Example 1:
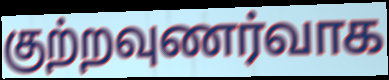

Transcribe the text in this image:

குற்றவுணர்வாக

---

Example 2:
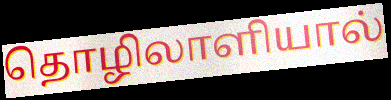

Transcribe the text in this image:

தொழிலாளியால்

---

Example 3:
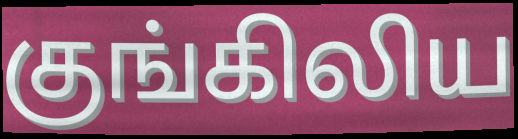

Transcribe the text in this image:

குங்கிலிய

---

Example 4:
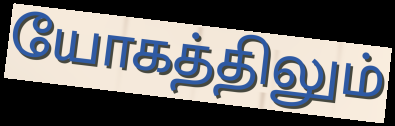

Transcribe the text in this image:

யோகத்திலும்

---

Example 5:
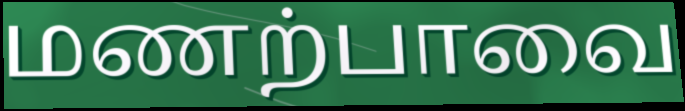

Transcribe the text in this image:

மணற்பாவை